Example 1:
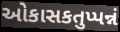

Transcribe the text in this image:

ઓકાસકતુપ્પન્નં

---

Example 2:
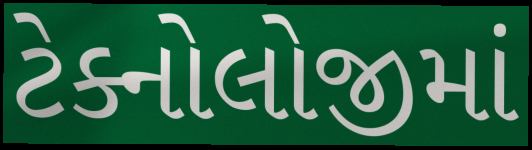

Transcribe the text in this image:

ટેક્નોલોજીમાં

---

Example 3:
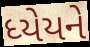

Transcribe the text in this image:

ધ્યેયને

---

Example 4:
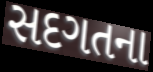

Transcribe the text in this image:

સદગતના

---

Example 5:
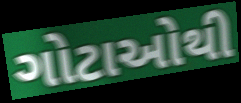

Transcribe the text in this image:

ગોટાઓથી